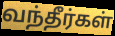
வந்தீர்கள்